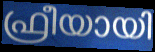
ഫ്രീയായി